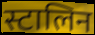
स्टालिन